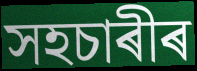
সহচাৰীৰ